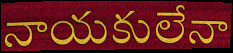
నాయకులేనా